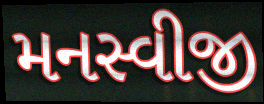
મનસ્વીજી